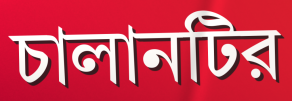
চালানটির